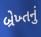
બ્રેખ્તનું